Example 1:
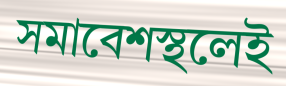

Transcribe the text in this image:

সমাবেশস্থলেই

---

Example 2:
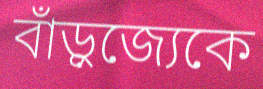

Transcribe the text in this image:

বাঁড়ুজ্যেকে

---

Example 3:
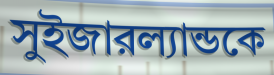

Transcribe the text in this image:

সুইজারল্যান্ডকে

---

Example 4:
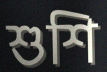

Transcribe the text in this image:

শুশি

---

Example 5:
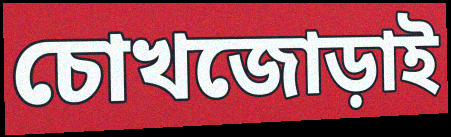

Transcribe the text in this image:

চোখজোড়াই